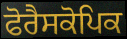
ਫੋਰੈਸਕੋਪਿਕ